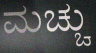
ಮಚ್ಚು